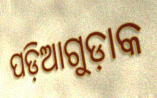
ପଡ଼ିଆଗୁଡ଼ାକ